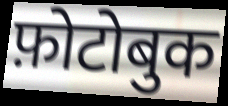
फ़ोटोबुक